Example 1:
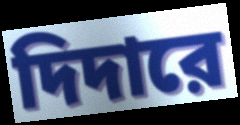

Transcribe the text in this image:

দিদারে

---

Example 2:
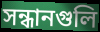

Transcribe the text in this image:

সন্ধানগুলি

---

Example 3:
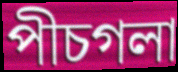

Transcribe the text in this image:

পীচগলা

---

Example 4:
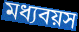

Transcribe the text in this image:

মধ্যবয়স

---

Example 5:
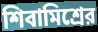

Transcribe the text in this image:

শিবামিশ্রের